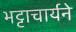
भट्टाचार्यने